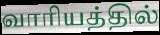
வாரியத்தில்